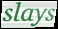
slays